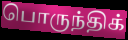
பொருந்திக்